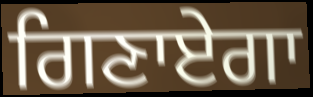
ਗਿਣਾਏਗਾ